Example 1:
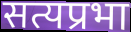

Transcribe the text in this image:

सत्यप्रभा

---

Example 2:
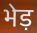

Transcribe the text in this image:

भेड़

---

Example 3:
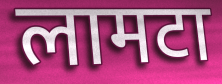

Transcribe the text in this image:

लामटा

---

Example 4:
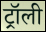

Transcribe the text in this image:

ट्रॉली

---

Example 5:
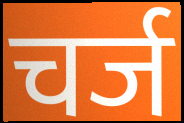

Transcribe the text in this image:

चर्ज